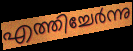
എത്തിച്ചേർന്നു